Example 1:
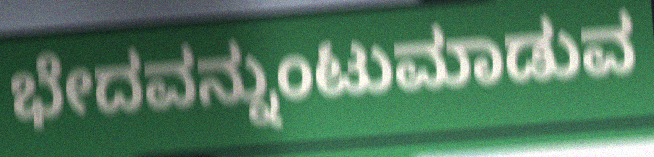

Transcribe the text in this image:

ಭೇದವನ್ನುಂಟುಮಾಡುವ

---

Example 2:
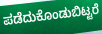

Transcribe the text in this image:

ಪಡೆದುಕೊಂಡುಬಿಟ್ಟರೆ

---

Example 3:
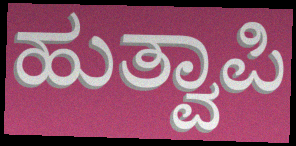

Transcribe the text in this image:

ಹುತ್ವಾಪಿ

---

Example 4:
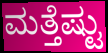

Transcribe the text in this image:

ಮತ್ತೆಷ್ಟು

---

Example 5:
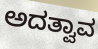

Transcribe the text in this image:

ಅದತ್ವಾವ